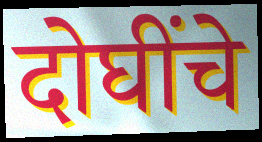
दोघींचे